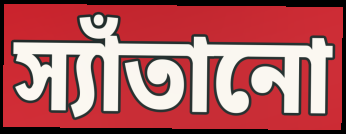
স্যাঁতানো